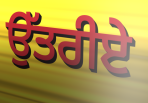
ਉੱਤਰੀਏ